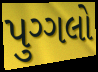
પુગ્ગલો